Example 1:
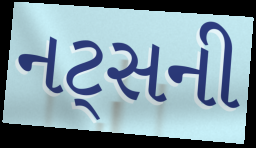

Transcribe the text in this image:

નટ્સની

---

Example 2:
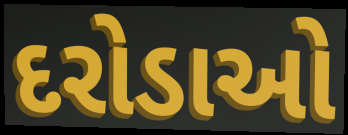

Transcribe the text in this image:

દરોડાઓ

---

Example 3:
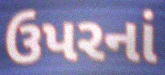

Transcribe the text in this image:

ઉપરનાં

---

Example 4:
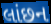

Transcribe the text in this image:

લાંછન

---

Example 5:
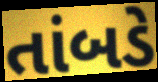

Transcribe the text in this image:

તાંબડે